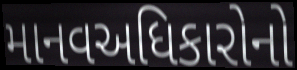
માનવઅધિકારોનો